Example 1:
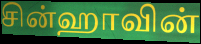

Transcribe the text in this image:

சின்ஹாவின்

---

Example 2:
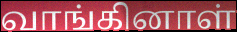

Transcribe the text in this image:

வாங்கினாள்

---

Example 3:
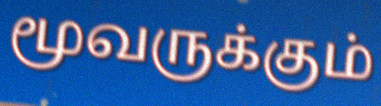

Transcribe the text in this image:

மூவருக்கும்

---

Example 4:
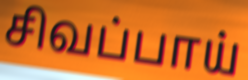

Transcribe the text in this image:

சிவப்பாய்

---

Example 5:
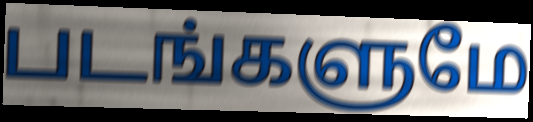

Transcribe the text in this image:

படங்களுமே